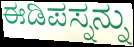
ಈಡಿಪಸ್ನನ್ನು